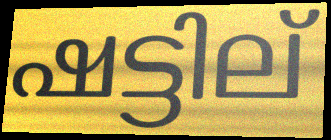
ഷട്ടില്